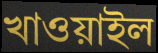
খাওয়াইল